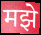
मझे